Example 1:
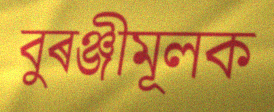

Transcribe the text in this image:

বুৰঞ্জীমূলক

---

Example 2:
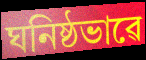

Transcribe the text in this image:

ঘনিষ্ঠভাৱে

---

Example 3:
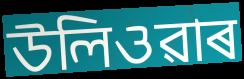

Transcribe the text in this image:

উলিওৱাৰ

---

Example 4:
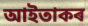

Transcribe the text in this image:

আইতাকৰ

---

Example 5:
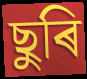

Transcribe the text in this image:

ছুৰি